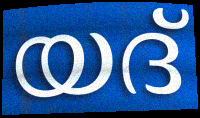
യദ്